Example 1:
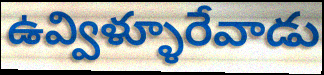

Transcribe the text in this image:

ఉవ్విళ్ళూరేవాడు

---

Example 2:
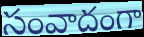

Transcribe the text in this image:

సంవాదంగా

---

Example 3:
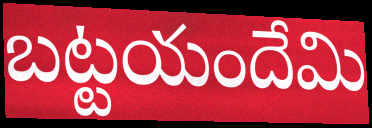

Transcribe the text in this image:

బట్టయందేమి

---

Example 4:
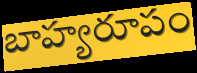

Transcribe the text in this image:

బాహ్యరూపం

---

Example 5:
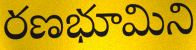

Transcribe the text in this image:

రణభూమిని